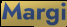
Margi